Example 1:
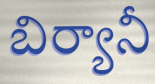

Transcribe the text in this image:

బిర్యానీ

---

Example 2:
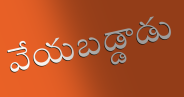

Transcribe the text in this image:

వేయబడ్డాడు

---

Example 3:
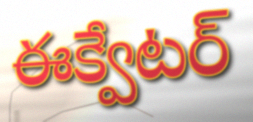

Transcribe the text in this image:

ఈక్వేటర్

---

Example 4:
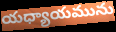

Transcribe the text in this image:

యధ్యాయమును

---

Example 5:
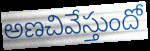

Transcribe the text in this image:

అణచివేస్తుందో